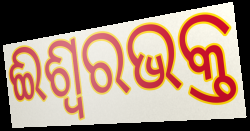
ଈଶ୍ୱରଭକ୍ତ